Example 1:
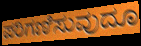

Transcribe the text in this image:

ಪರಿಗಣಿಸುವುದೂ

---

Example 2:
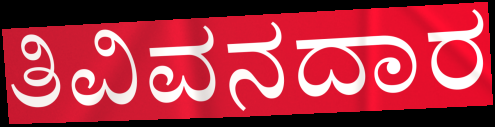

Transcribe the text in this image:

ತಿವಿವನದಾರ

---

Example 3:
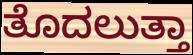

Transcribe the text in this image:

ತೊದಲುತ್ತಾ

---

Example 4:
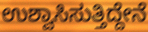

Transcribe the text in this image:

ಉಶ್ವಾಸಿಸುತ್ತಿದ್ದೇನೆ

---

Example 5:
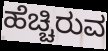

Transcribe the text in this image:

ಹೆಚ್ಚಿರುವ